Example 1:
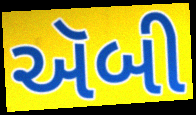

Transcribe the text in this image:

ઍબી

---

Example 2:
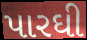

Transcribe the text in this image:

પારઘી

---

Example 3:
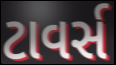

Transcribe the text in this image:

ટાવર્સ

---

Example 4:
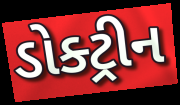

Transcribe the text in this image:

ડોક્ટ્રીન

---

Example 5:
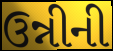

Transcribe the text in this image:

ઉન્નીની